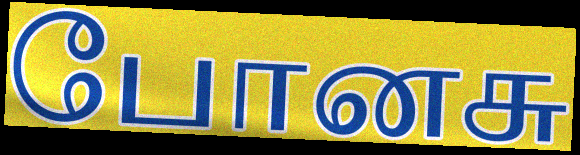
போனசு